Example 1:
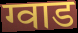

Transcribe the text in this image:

ग्वाड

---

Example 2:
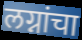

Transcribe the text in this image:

लग्नांचा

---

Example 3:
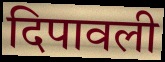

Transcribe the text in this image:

दिपावली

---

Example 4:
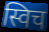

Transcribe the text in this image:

स्विच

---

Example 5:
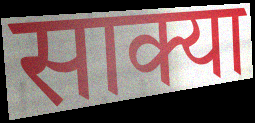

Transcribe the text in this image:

साक्या